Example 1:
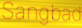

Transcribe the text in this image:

Sangbad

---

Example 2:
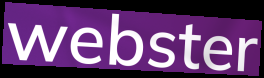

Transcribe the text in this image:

webster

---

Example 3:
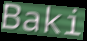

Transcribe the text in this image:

Baki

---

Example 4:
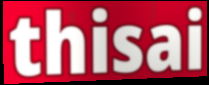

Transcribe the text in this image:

thisai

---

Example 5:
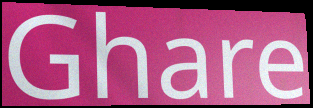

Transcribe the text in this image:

Ghare